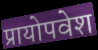
प्रायोपवेश